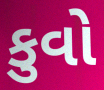
કુવો